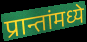
प्रान्तांमध्ये